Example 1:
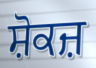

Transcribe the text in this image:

ਸ਼ੋਕਜ਼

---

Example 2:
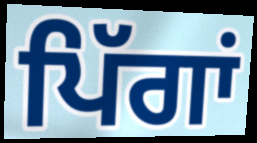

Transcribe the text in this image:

ਪਿੱਗਾਂ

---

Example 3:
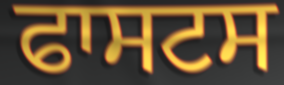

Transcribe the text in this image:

ਫਾਸਟਸ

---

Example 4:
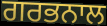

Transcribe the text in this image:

ਗਰਭਨਾਲ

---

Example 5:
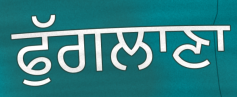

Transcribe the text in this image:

ਫੁੱਗਲਾਣਾ